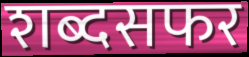
शब्दसफर